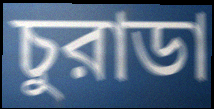
চুরাডা